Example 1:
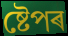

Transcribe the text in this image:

ষ্টেপৰ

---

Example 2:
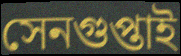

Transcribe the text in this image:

সেনগুপ্তাই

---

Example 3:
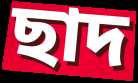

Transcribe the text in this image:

ছাদ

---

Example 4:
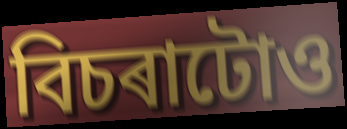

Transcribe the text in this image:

বিচৰাটোও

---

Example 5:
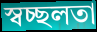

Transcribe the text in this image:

স্বচ্ছলতা